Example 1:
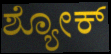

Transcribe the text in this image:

ಶ್ಯೋಕ್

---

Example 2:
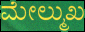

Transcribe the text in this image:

ಮೇಲ್ಮುಖ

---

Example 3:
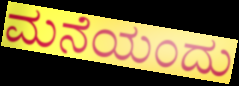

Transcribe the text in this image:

ಮನೆಯಂದು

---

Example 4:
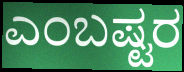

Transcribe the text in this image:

ಎಂಬಷ್ಟರ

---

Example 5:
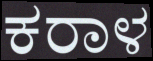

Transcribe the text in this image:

ಕರಾಳ